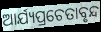
ଆର୍ଯ୍ୟପ୍ରଚେତାବୃନ୍ଦ